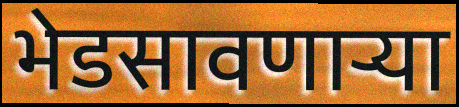
भेडसावणार्‍या